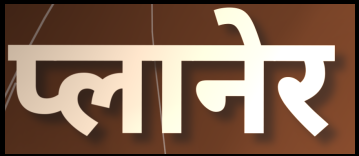
प्लानेर